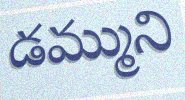
డమ్ముని